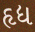
હૃદ્ય